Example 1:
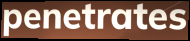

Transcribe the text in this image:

penetrates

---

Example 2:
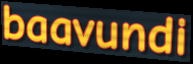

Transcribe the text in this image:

baavundi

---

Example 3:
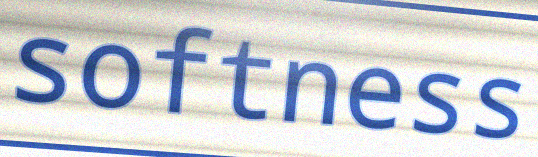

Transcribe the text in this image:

softness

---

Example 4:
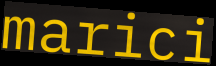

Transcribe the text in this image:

marici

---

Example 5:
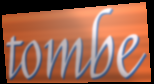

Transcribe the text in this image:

tombe